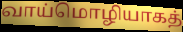
வாய்மொழியாகத்